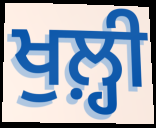
ਖੁਲ਼੍ਹੀ